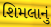
શિમલાનું